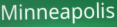
Minneapolis